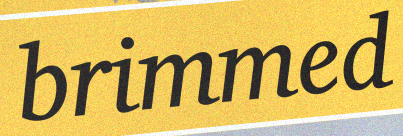
brimmed